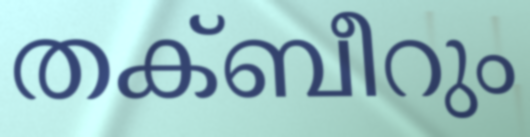
തക്ബീറും